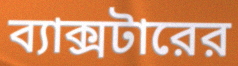
ব্যাক্সটারের